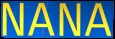
NANA